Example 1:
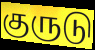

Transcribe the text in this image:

குருடு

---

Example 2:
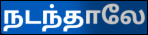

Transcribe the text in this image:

நடந்தாலே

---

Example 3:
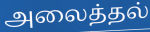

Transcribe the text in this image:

அலைத்தல்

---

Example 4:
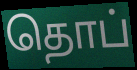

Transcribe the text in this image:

தொப்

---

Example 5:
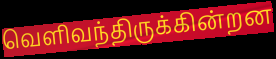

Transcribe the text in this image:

வெளிவந்திருக்கின்றன